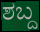
ಶಬ್ದ